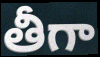
తీగా